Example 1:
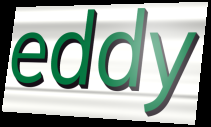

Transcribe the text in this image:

eddy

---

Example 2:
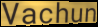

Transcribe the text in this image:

Vachun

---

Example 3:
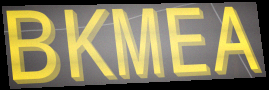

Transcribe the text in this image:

BKMEA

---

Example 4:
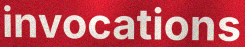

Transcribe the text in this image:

invocations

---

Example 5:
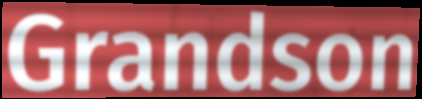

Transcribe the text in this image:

Grandson